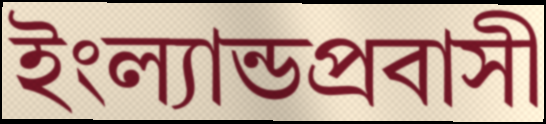
ইংল্যান্ডপ্রবাসী